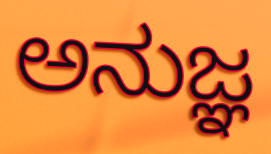
ಅನುಜ್ಞ